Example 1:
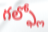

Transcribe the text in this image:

గల్ఫ్లో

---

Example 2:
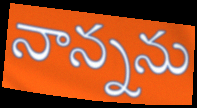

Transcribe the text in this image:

నాన్నను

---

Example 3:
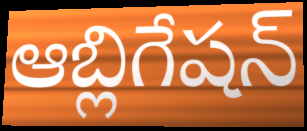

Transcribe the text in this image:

ఆబ్లిగేషన్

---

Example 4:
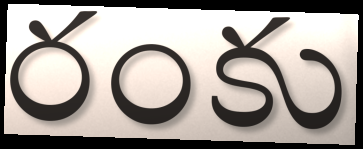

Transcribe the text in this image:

రంకు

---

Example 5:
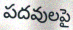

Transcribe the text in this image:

పదవులపై